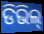
ଡିଭିଲ୍